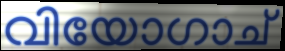
വിയോഗാച്